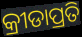
କ୍ରୀଡାପ୍ରତି